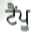
ਟੈਂਪੂ